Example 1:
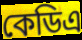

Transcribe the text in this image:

কেডিএ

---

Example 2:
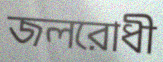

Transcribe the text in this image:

জলরোধী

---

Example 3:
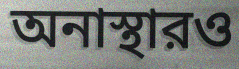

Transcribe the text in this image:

অনাস্থারও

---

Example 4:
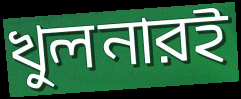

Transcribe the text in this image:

খুলনারই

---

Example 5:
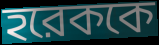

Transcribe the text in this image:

হরেককে